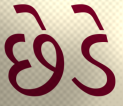
છેડે